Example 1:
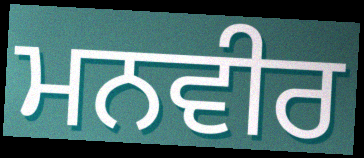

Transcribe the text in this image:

ਮਨਵੀਰ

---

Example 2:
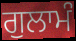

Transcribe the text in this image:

ਗੁਲਾਮੰ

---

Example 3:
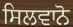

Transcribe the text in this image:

ਸਿਲਵਾਨੋ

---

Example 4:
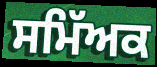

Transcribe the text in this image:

ਸਮਿੱਅਕ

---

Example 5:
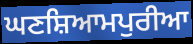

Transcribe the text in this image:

ਘਣਸ਼ਿਆਮਪੁਰੀਆ